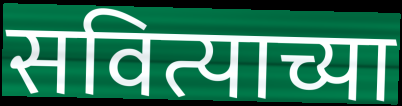
सवित्याच्या